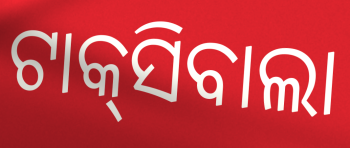
ଟାକ୍‌ସିବାଲା